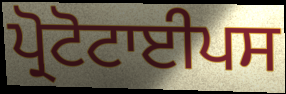
ਪ੍ਰੋਟੋਟਾਈਪਸ